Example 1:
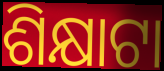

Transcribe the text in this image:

ଶିକ୍ଷାଟା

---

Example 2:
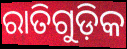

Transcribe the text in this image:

ରାତିଗୁଡ଼ିକ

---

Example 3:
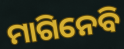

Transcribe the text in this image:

ମାଗିନେବି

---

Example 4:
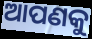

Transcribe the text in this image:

ଆପଣକୁ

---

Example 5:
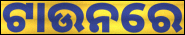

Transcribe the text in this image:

ଟାଉନରେ